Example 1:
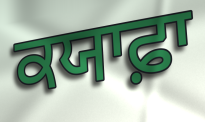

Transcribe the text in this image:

ਕਯਾਫ਼ਾ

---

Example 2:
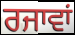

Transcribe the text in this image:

ਰਜਾਵਾਂ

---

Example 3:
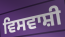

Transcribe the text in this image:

ਵਿਸਵਾਸ਼ੀ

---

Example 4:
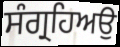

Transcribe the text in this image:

ਸੰਗ੍ਰਹਿਅਉ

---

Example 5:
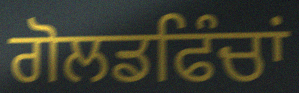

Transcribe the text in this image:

ਗੋਲਡਫਿੰਚਾਂ